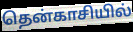
தென்காசியில்